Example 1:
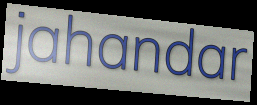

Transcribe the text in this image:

jahandar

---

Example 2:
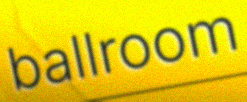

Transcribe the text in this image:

ballroom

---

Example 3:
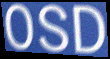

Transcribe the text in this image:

OSD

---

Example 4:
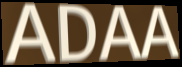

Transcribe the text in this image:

ADAA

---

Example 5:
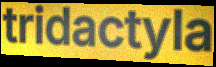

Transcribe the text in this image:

tridactyla